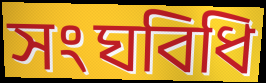
সংঘবিধি